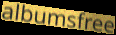
albumsfree